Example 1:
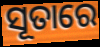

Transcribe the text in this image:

ସୂତାରେ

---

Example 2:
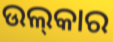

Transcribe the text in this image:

ଉଲ୍‍କାର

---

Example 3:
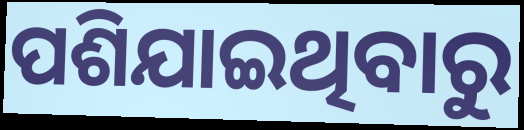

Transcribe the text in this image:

ପଶିଯାଇଥିବାରୁ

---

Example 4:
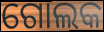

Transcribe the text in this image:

ଗୋଲକ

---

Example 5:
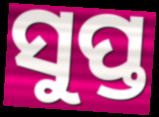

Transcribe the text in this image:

ସୁପ୍ତ